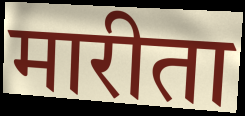
मारीता